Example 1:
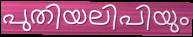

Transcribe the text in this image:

പുതിയലിപിയും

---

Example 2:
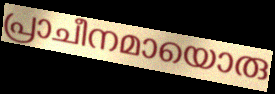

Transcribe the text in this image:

പ്രാചീനമായൊരു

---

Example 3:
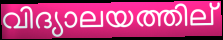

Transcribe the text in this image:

വിദ്യാലയത്തില്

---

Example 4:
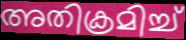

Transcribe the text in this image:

അതിക്രമിച്ച്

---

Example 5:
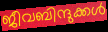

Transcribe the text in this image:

ജീവബിന്ദുക്കൾ